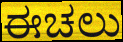
ಈಚಲು